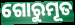
ଗୋରୁମୂତ